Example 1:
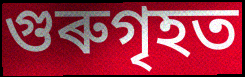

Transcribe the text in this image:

গুৰুগৃহত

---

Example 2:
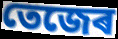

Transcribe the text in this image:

তেজেৰ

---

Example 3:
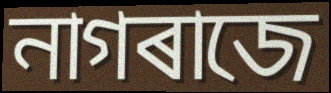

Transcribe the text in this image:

নাগৰাজে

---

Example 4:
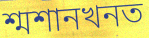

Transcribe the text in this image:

শ্মশানখনত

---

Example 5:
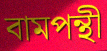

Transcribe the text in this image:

বামপন্থী